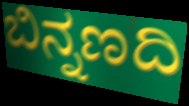
ಬಿನ್ನಣದಿ